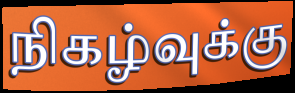
நிகழ்வுக்கு